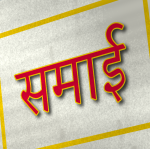
समाई